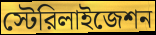
স্টেরিলাইজেশন